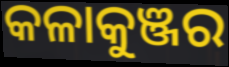
କଳାକୁଞ୍ଜର